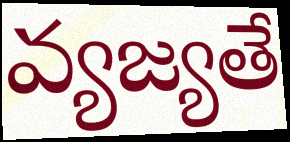
వ్యజ్యతే